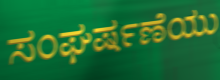
ಸಂಘರ್ಷಣೆಯು